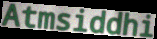
Atmsiddhi